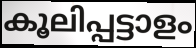
കൂലിപ്പട്ടാളം